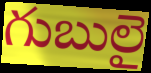
గుబులై